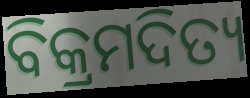
ବିକ୍ରମଦିତ୍ୟ